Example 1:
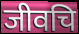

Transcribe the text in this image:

जीवचि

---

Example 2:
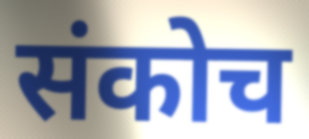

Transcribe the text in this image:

संकोच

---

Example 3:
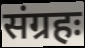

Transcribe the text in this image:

संग्रहः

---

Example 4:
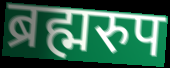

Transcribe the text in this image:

ब्रह्मरुप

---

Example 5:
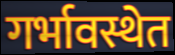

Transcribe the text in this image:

गर्भावस्थेत